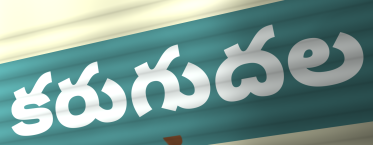
కరుగుదల